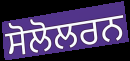
ਸੋਲੋਲਰਨ